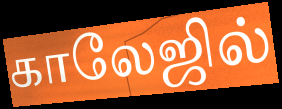
காலேஜில்